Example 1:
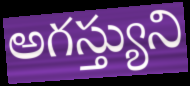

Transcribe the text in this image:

అగస్త్యుని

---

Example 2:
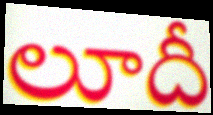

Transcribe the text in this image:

లూదీ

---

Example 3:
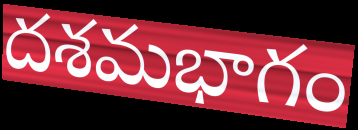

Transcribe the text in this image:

దశమభాగం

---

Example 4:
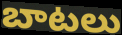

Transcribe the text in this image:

బాటలు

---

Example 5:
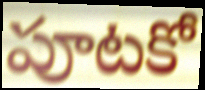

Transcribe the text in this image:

పూటకో